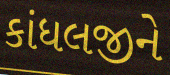
કાંધલજીને